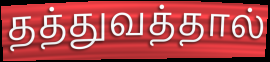
தத்துவத்தால்